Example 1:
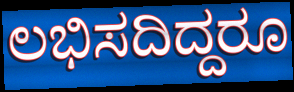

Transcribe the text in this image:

ಲಭಿಸದಿದ್ದರೂ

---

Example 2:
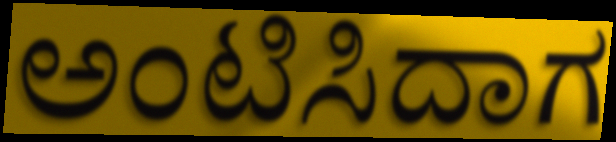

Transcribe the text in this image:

ಅಂಟಿಸಿದಾಗ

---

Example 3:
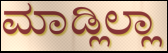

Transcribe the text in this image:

ಮಾಡ್ಲಿಲ್ಲಾ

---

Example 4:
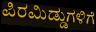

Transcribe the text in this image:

ಪಿರಮಿಡ್ಡುಗಳಿಗೆ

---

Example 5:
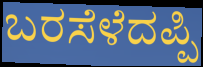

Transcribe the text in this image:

ಬರಸೆಳೆದಪ್ಪಿ